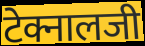
टेक्नालजी